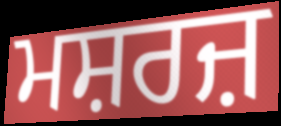
ਮਸ਼ਰਜ਼